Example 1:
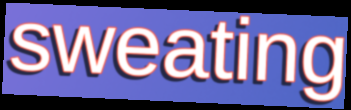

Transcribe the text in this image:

sweating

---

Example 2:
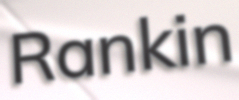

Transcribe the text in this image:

Rankin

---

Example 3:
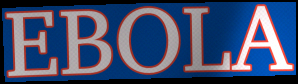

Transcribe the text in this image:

EBOLA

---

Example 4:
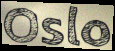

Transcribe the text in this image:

Oslo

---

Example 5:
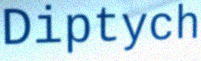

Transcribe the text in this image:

Diptych